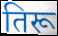
तिरू